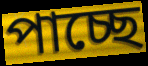
পাচ্ছে